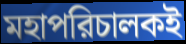
মহাপরিচালকই